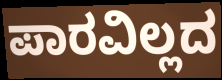
ಪಾರವಿಲ್ಲದ